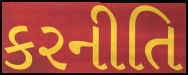
કરનીતિ